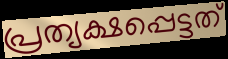
പ്രത്യക്ഷപ്പെട്ടത്